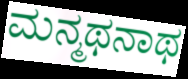
ಮನ್ಮಥನಾಥ